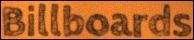
Billboards